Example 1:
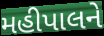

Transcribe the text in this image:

મહીપાલને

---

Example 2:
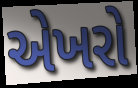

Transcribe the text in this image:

એખરો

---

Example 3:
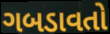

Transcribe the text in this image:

ગબડાવતો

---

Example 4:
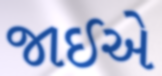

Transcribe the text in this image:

જાઈએ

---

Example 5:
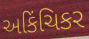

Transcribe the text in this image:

અકિંચિકર